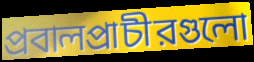
প্রবালপ্রাচীরগুলো